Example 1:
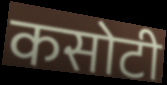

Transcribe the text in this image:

कसोटी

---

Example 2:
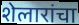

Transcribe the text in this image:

शेलारांचा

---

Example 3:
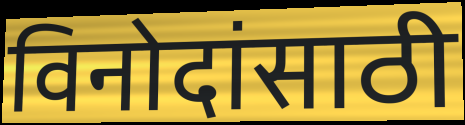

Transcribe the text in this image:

विनोदांसाठी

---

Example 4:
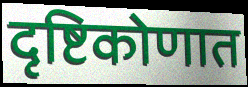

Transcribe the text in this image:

दृष्टिकोणात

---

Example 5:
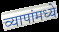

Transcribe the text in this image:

व्यापांमध्ये